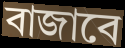
বাজাবে